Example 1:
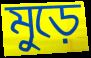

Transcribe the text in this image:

মুড়ে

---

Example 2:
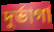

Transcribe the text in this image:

দুর্ভাগা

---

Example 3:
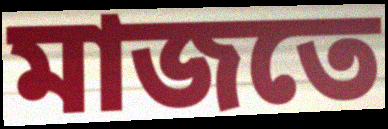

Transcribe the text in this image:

মাজতে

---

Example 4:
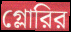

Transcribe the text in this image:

গ্লোরির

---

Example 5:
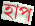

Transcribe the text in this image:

হাপ